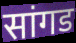
सांगड